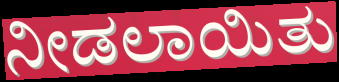
ನೀಡಲಾಯಿತು